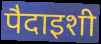
पैदाइशी